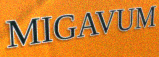
MIGAVUM